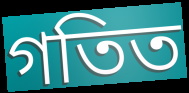
গতিত